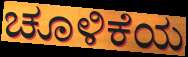
ಚೂಳಿಕೆಯ